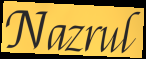
Nazrul